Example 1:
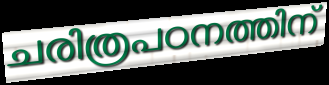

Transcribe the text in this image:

ചരിത്രപഠനത്തിന്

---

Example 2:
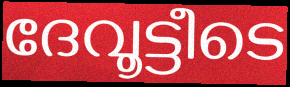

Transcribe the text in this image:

ദേവൂട്ടീടെ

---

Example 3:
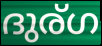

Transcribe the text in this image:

ദുര്ഗ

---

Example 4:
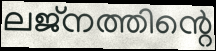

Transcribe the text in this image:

ലജ്നത്തിന്റെ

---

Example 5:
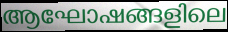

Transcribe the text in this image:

ആഘോഷങ്ങളിലെ